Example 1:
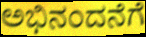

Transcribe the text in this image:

ಅಭಿನಂದನೆಗೆ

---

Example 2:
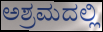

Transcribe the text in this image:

ಅಶ್ರಮದಲ್ಲಿ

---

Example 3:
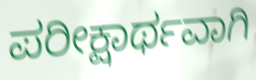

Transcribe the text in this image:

ಪರೀಕ್ಷಾರ್ಥವಾಗಿ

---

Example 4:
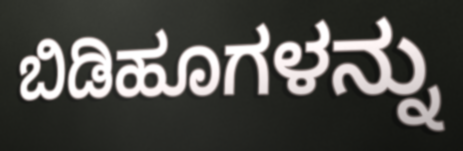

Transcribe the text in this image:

ಬಿಡಿಹೂಗಳನ್ನು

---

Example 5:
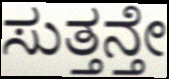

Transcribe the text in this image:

ಸುತ್ತನ್ತೇ